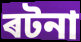
ৰটনা